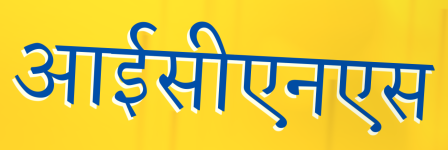
आईसीएनएस